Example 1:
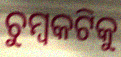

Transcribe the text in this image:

ଚୁମ୍ବକଟିକୁ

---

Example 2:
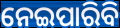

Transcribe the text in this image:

ନେଇପାରିବି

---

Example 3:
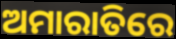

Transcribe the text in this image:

ଅମାରାତିରେ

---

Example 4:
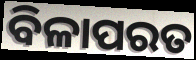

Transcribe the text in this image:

ବିଳାପରତ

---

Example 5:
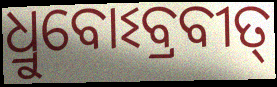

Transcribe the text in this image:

ଧ୍ରୁବୋଽବ୍ରବୀତ୍